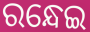
ରନ୍ଧେଇ